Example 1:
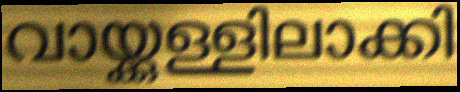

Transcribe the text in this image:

വായ്ക്കുള്ളിലാക്കി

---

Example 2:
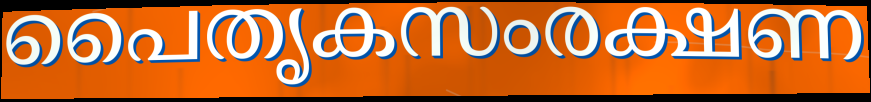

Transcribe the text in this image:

പൈതൃകസംരക്ഷണ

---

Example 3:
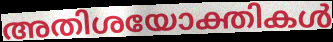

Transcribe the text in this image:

അതിശയോക്തികൾ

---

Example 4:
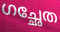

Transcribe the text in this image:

ഗച്ഛേത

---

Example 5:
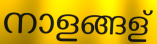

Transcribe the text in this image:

നാളങ്ങള്